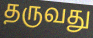
தருவது